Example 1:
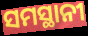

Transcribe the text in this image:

ସମସ୍ଥାନୀ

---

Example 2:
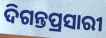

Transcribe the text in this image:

ଦିଗନ୍ତପ୍ରସାରୀ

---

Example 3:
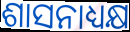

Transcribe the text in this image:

ଶାସନାଧ୍ୟକ୍ଷ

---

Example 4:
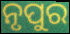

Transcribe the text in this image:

ନୃପୁର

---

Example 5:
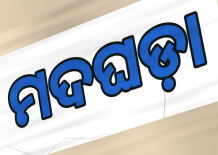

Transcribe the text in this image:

ମଦଘଡ଼ା